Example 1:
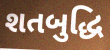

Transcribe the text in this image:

શતબુદ્ધિ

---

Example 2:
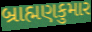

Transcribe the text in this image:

બ્રાહ્મણકુમાર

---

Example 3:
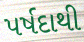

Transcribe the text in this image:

પર્ષદાથી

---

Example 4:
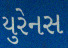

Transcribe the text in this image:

યુરેનસ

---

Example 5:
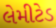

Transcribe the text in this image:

લેમીટેડ